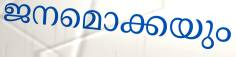
ജനമൊക്കയും